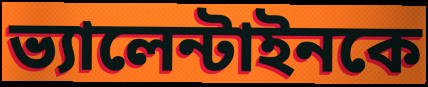
ভ্যালেন্টাইনকে